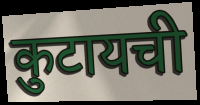
कुटायची